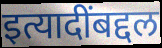
इत्यादींबद्दल